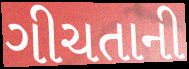
ગીચતાની